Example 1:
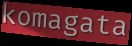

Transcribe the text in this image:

komagata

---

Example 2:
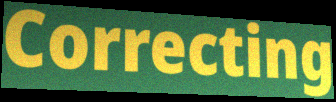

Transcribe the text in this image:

Correcting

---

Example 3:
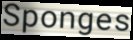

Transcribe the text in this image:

Sponges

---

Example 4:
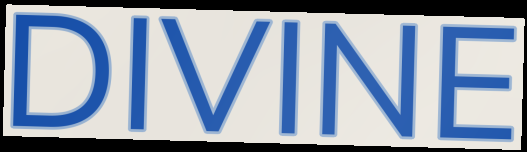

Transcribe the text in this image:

DIVINE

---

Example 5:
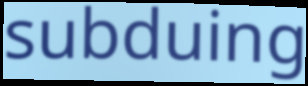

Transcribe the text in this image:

subduing